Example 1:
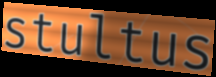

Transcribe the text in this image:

stultus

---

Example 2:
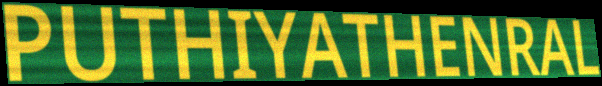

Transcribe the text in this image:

PUTHIYATHENRAL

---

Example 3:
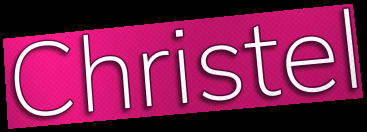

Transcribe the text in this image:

Christel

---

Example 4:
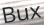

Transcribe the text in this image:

Bux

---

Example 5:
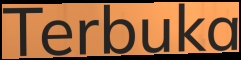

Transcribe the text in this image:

Terbuka